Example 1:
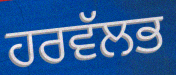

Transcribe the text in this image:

ਹਰਵੱਲਭ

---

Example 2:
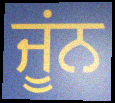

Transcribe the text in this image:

ਜੂਂਨ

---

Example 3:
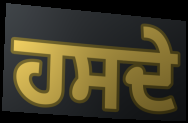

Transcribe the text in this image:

ਹਸਦੇ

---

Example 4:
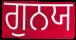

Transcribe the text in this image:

ਗੁਨਯ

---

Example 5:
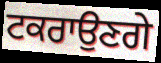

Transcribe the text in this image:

ਟਕਰਾਉਣਗੇ